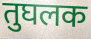
तुघलक